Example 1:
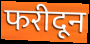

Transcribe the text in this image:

फरीदून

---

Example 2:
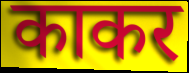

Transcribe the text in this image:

काकर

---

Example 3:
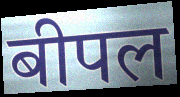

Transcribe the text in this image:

बीपल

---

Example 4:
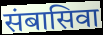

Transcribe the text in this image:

संबासिवा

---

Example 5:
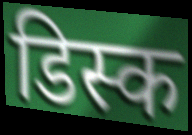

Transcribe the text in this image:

डिस्क